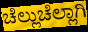
ಚೆಲ್ಲುಚೆಲ್ಲಾಗಿ